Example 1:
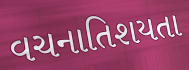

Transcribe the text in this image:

વચનાતિશયતા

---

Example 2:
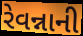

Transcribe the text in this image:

રેવન્નાની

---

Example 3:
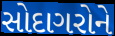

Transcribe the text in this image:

સોદાગરોને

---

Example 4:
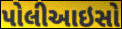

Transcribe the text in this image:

પોલીઆઇસો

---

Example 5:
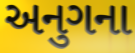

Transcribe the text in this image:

અનુગના